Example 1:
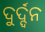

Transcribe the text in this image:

ଦୁର୍ଦ୍ଦନ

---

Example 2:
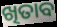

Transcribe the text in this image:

ଖିତାବ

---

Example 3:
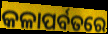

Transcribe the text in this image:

କଳାପର୍ବତରେ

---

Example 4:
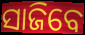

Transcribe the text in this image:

ସାଜିବେ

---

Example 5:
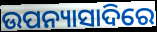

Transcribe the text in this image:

ଉପନ୍ୟାସାଦିରେ